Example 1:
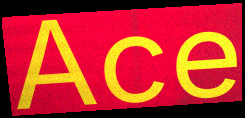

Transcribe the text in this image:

Ace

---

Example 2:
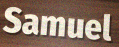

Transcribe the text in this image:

Samuel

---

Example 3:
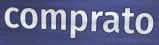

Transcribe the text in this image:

comprato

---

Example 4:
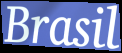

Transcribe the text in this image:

Brasil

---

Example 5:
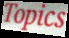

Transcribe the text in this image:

Topics